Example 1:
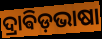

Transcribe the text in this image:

ଦ୍ରାଵିଡ଼ଭାଷା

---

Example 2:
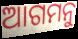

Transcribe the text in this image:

ଆଗମନୁ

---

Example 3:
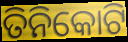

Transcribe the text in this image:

ତିନିକୋଟି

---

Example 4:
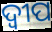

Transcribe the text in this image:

ଦ୍ବୀପ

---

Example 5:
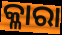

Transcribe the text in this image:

କ୍ଳାରା